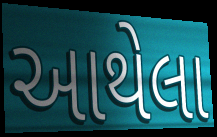
આથેલા